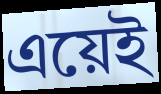
এয়েই